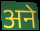
अने